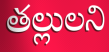
తల్లులని